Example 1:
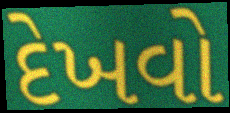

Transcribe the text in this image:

દેખવો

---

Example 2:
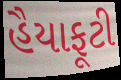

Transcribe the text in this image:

હૈયાફૂટી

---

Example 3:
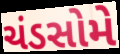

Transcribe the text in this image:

ચંડસોમે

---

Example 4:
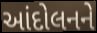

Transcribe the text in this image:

આંદોલનને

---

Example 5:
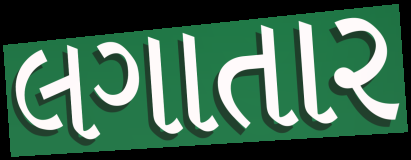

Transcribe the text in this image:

લગાતાર